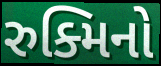
રુક્મિનો